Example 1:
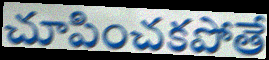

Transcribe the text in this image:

చూపించకపోతే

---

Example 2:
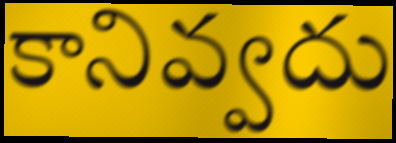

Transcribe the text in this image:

కానివ్వదు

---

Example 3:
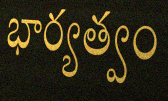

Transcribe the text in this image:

భార్యత్వం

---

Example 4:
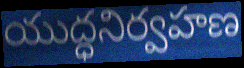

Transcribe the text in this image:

యుద్ధనిర్వహణ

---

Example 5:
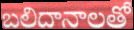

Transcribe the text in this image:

బలిదానాలతో